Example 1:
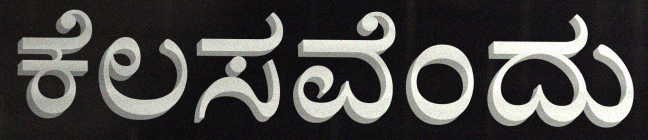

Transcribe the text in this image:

ಕೆಲಸವೆಂದು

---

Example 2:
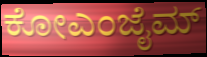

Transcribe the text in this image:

ಕೋಎಂಜೈಮ್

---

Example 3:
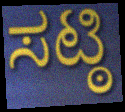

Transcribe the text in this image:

ಸಟ್ಠಿ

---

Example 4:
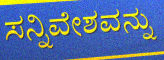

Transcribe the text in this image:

ಸನ್ನಿವೇಶವನ್ನು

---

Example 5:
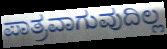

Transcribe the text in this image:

ಪಾತ್ರವಾಗುವುದಿಲ್ಲ